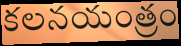
కలనయంత్రం